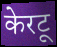
केरटू